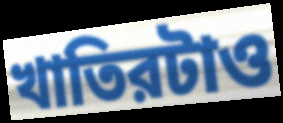
খাতিরটাও